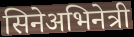
सिनेअभिनेत्री